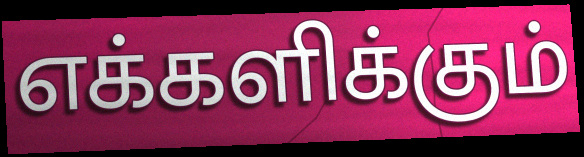
எக்களிக்கும்